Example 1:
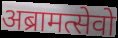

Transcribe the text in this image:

अब्रामत्सेवो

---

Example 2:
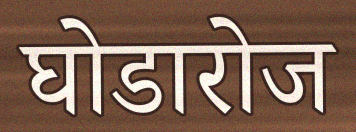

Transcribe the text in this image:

घोडारोज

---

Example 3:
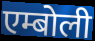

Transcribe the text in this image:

एम्बोली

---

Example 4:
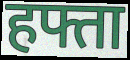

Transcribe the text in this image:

हफ्ता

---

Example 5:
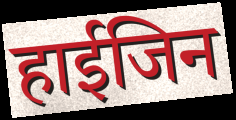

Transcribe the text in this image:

हाईजिन